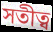
সতীত্ব